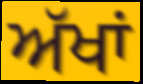
ਅੱਖਾਂ